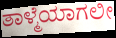
ತಾಳ್ಮೆಯಾಗಲೀ